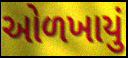
ઓળખાયું